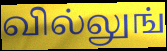
வில்லுங்